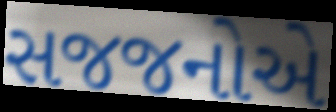
સજજનોએ